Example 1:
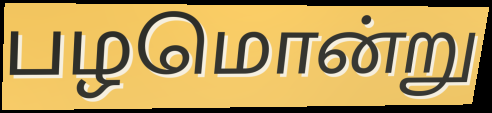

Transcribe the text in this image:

பழமொன்று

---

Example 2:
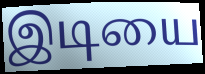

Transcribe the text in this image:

இடியை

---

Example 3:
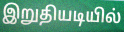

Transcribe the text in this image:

இறுதியடியில்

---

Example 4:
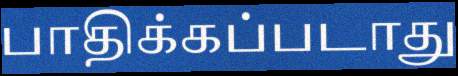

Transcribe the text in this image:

பாதிக்கப்படாது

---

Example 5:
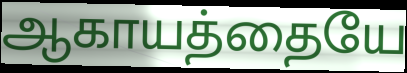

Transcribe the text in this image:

ஆகாயத்தையே